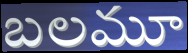
బలమూ